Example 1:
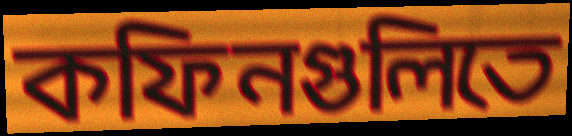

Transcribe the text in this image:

কফিনগুলিতে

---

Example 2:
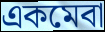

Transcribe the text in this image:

একমেবা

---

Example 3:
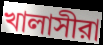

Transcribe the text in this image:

খালাসীরা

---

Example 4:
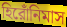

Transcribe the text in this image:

হিরোঁনিমাস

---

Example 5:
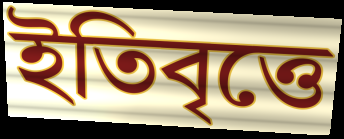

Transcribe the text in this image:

ইতিবৃত্তে